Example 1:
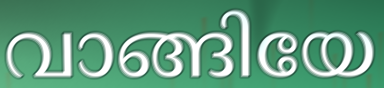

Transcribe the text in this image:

വാങ്ങിയേ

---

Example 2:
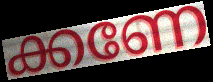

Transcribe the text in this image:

ക്കണേ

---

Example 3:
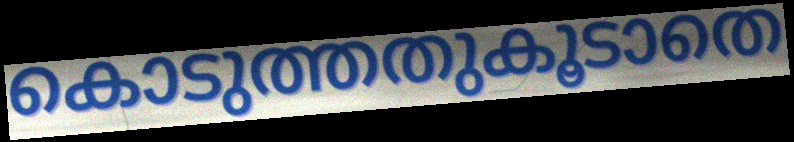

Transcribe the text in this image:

കൊടുത്തതുകൂടാതെ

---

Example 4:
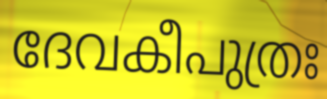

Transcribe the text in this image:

ദേവകീപുത്രഃ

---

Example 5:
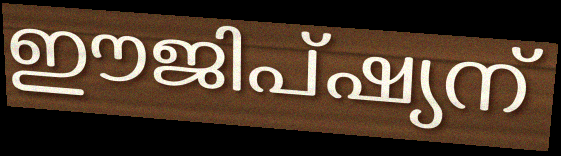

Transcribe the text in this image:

ഈജിപ്ഷ്യന്